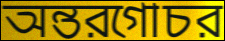
অন্তরগোচর